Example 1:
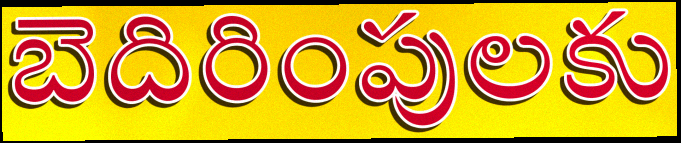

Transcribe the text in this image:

బెదిరింపులకు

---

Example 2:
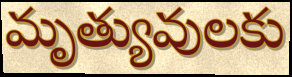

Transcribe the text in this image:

మృత్యువులకు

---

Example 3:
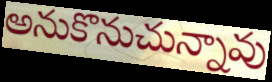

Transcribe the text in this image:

అనుకొనుచున్నావు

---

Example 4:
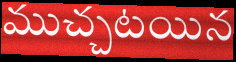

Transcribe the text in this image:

ముచ్చటయిన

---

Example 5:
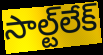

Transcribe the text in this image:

సాల్ట్‌లేక్